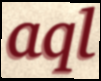
aql